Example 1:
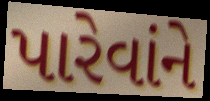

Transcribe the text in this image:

પારેવાંને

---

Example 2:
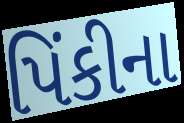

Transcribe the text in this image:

પિંકીના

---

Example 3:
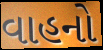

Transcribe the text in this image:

વાહનો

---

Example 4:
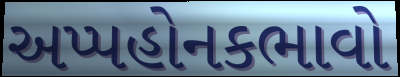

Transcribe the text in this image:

અપ્પહોનકભાવો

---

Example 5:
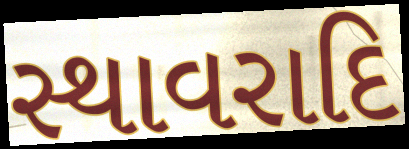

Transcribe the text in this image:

સ્થાવરાદિ